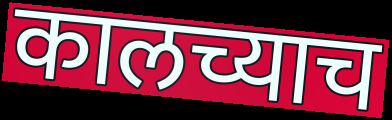
कालच्याच